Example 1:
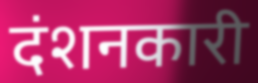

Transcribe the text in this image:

दंशनकारी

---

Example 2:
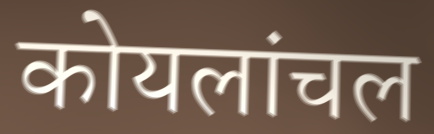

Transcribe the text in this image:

कोयलांचल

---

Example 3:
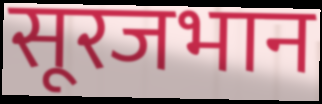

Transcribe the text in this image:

सूरजभान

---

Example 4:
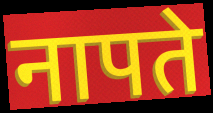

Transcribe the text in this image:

नापते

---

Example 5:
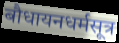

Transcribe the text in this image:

बौधायनधर्मसूत्र